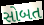
સોબત